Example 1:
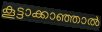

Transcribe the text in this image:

കൂട്ടാക്കാഞ്ഞാൽ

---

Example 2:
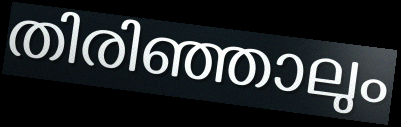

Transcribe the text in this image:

തിരിഞ്ഞാലും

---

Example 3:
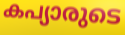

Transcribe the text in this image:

കപ്യാരുടെ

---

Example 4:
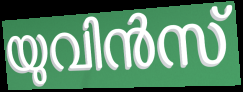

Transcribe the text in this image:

യുവിൻസ്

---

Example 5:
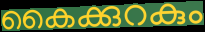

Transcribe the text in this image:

കൈക്കുറകും